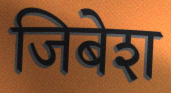
जिबेश